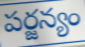
పర్జన్యం